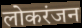
लोकरंजन